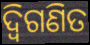
ଦ୍ୱିଗଣିତ